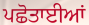
ਪਛੋਤਾਈਆਂ